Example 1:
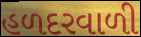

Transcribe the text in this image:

હળદરવાળી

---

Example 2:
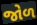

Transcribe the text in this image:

જોળ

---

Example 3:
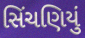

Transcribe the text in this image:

સિંચણિયું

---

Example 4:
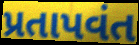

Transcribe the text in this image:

પ્રતાપવંત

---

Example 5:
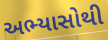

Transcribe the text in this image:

અભ્યાસોથી